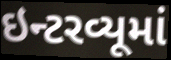
ઇન્ટરવ્યૂમાં